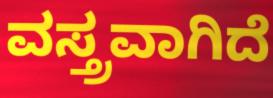
ವಸ್ತ್ರವಾಗಿದೆ